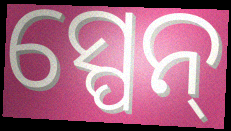
ସ୍ପେନ୍